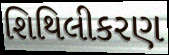
શિથિલીકરણ